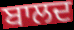
ਬਾਲਦ